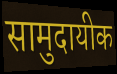
सामुदायीक